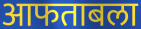
आफताबला